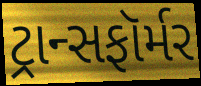
ટ્રાન્સફૉર્મર